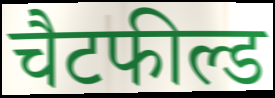
चैटफील्ड